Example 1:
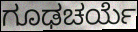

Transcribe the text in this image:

ಗೂಢಚರ್ಯೆ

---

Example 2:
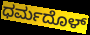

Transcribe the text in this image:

ಧರ್ಮದೊಳ್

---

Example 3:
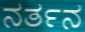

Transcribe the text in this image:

ನರ್ತನ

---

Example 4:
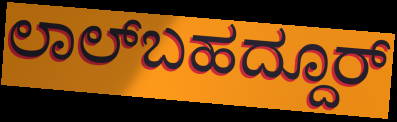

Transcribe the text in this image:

ಲಾಲ್‌ಬಹದ್ದೂರ್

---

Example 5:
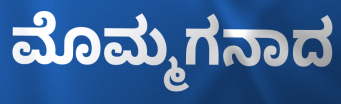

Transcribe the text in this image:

ಮೊಮ್ಮಗನಾದ